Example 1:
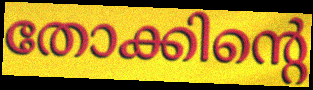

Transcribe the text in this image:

തോക്കിന്റെ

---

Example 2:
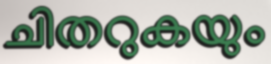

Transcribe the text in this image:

ചിതറുകയും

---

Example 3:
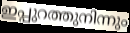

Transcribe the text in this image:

ഇപ്പുറത്തുനിന്നും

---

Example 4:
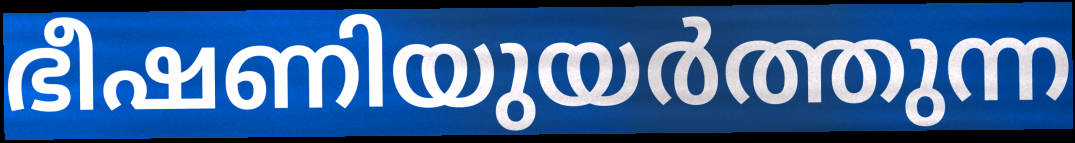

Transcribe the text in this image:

ഭീഷണിയുയർത്തുന്ന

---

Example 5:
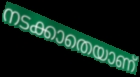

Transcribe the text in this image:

നടക്കാതെയാണ്